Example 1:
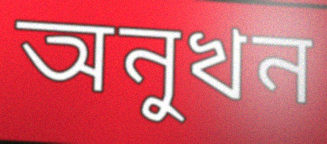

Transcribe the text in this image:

অনুখন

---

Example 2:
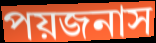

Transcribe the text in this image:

পয়জনাস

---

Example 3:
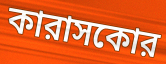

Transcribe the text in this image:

কারাসকোর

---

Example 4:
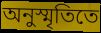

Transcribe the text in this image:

অনুস্মৃতিতে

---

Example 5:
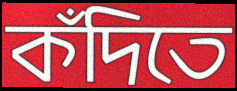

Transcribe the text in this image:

কঁদিতে